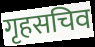
गृहसचिव